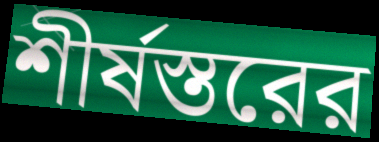
শীর্ষস্তরের